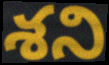
శని